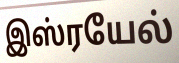
இஸ்ரயேல்